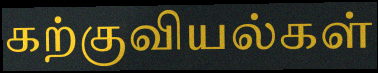
கற்குவியல்கள்